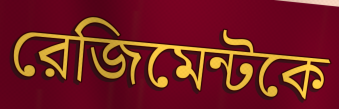
রেজিমেন্টকে